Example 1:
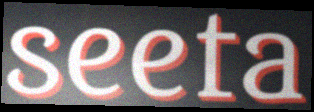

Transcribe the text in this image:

seeta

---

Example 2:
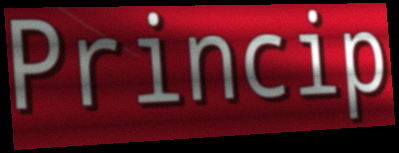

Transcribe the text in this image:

Princip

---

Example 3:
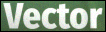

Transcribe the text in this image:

Vector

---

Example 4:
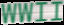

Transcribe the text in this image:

WWII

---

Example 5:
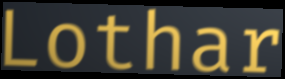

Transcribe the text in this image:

Lothar